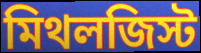
মিথলজিস্ট